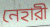
নেহারী